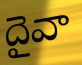
దైవా